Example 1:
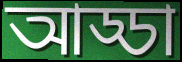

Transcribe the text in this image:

আড্ডা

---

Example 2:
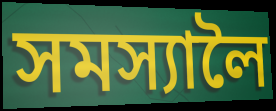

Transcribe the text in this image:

সমস্যালৈ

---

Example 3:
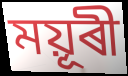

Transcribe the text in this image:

ময়ূৰী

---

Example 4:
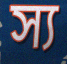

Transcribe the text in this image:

স্য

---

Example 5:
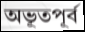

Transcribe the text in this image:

অভূতপূৰ্ব